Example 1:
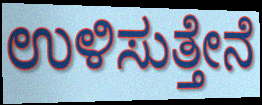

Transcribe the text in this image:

ಉಳಿಸುತ್ತೇನೆ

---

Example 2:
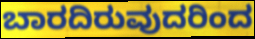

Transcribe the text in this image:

ಬಾರದಿರುವುದರಿಂದ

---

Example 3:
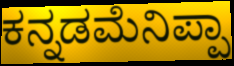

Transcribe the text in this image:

ಕನ್ನಡಮೆನಿಪ್ಪಾ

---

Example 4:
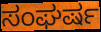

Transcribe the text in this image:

ಸಂಘರ್ಷ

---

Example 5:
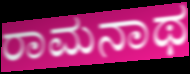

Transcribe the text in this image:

ರಾಮನಾಥ